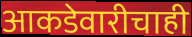
आकडेवारीचाही